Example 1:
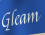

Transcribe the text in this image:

Gleam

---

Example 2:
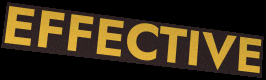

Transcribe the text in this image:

EFFECTIVE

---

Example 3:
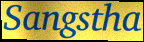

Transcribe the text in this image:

Sangstha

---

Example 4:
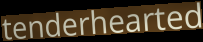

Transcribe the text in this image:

tenderhearted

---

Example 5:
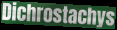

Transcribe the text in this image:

Dichrostachys